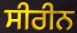
ਸੀਰੀਨ